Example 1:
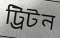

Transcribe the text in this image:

ট্রিটন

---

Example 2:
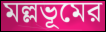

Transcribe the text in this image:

মল্লভূমের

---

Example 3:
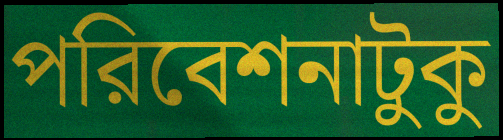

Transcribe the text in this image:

পরিবেশনাটুকু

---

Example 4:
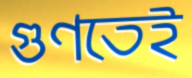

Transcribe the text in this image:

গুণতেই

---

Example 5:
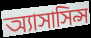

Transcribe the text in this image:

অ্যাসাসিন্স